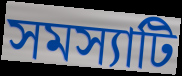
সমস্যাটি